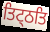
ਤਿਟ੍ਠਤਿ